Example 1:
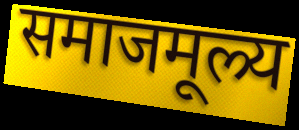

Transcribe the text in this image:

समाजमूल्य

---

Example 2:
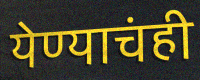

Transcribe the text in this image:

येण्याचंही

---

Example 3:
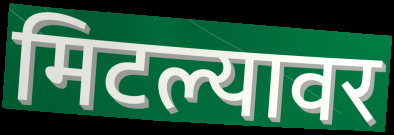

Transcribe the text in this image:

मिटल्यावर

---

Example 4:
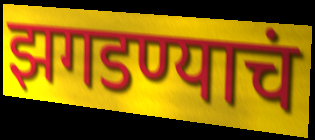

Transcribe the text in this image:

झगडण्याचं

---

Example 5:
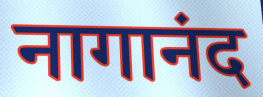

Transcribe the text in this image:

नागानंद